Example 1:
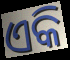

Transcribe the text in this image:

ଏକି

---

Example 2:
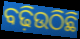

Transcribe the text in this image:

ବଢ଼ିଉଠିଛି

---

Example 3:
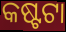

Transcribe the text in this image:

କଷ୍ଟଟା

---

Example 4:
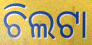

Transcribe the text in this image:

ଚିଲଟା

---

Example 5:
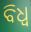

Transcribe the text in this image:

ବିଧ୍ଵ